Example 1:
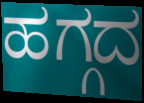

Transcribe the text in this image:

ಹಗ್ಗದ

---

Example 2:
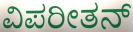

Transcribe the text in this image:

ವಿಪರೀತನ್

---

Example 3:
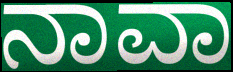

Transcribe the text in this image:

ನಾವಾ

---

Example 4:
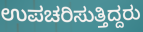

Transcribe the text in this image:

ಉಪಚರಿಸುತ್ತಿದ್ದರು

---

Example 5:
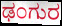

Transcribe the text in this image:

ಢಂಗುರ